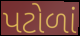
પટોળાં